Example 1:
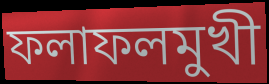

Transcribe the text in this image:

ফলাফলমুখী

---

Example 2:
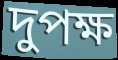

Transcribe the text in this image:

দুপক্ষ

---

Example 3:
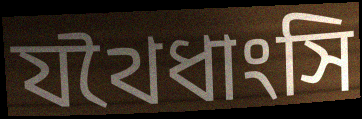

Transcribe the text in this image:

যথৈধাংসি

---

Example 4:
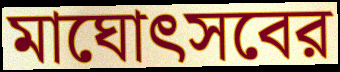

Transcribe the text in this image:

মাঘোৎসবের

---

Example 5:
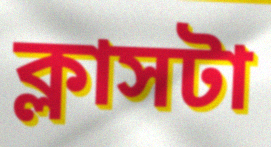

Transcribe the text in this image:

ক্লাসটা